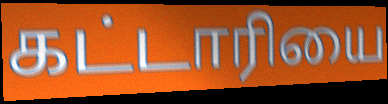
கட்டாரியை